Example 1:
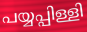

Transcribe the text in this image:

പയ്യപ്പിള്ളി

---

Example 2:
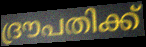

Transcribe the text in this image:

ദ്രൗപതിക്ക്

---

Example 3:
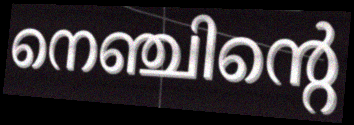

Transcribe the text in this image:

നെഞ്ചിന്റെ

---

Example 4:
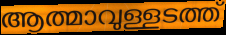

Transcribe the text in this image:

ആത്മാവുള്ളടത്ത്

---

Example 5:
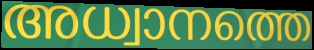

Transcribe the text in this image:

അധ്വാനത്തെ